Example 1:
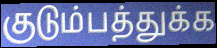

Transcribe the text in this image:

குடும்பத்துக்க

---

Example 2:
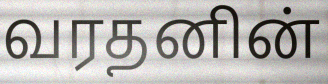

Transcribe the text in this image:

வரதனின்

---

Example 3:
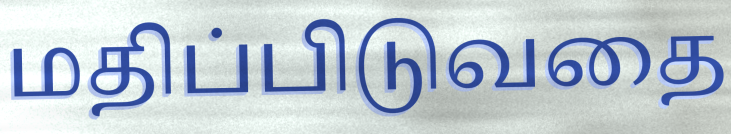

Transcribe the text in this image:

மதிப்பிடுவதை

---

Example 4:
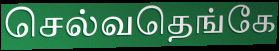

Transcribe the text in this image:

செல்வதெங்கே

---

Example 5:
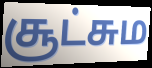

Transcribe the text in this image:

சூட்சும